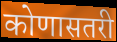
कोणासतरी